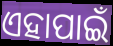
ଏହାପାଇଁ